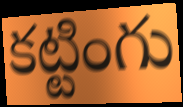
కట్టింగు